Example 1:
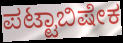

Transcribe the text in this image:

ಪಟ್ಟಾಬಿಷೇಕ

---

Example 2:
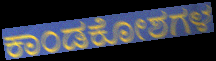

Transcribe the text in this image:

ಕಾಂಡಕೋಶಗಳ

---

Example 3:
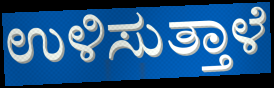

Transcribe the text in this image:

ಉಳಿಸುತ್ತಾಳೆ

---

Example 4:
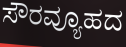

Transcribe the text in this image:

ಸೌರವ್ಯೂಹದ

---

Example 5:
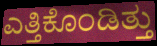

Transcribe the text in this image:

ಎತ್ತಿಕೊಂಡಿತ್ತು